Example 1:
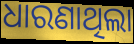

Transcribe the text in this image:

ଧାରଣାଥିଲା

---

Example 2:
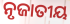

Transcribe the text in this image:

ନୃଜାତୀୟ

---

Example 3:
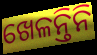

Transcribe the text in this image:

ଖେଳନ୍ତିନି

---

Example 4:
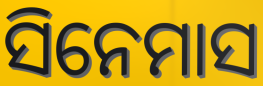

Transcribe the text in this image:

ସିନେମାସ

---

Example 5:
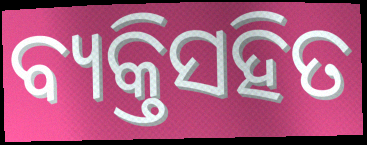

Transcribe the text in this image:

ବ୍ୟକ୍ତିସହିତ